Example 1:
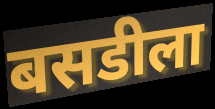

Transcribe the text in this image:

बसडीला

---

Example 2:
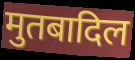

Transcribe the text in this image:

मुतबादिल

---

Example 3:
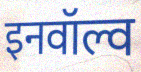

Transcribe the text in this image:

इनवॉल्व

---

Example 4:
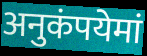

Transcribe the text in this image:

अनुकंपयेमां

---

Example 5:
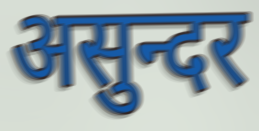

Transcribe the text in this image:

असुन्दर